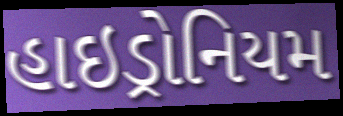
હાઇડ્રોનિયમ